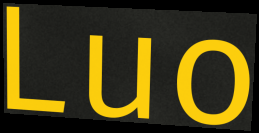
Luo